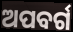
ଅପବର୍ଗ